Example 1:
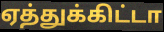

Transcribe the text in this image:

ஏத்துக்கிட்டா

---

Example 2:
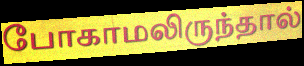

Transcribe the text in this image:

போகாமலிருந்தால்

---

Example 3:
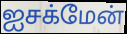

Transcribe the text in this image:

ஐசக்மேன்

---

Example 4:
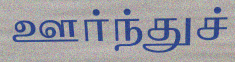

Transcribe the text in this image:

ஊர்ந்துச்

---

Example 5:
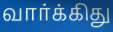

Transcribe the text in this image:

வார்க்கிது